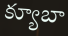
క్యూబా